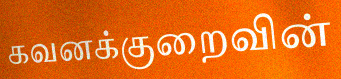
கவனக்குறைவின்